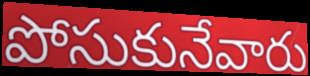
పోసుకునేవారు